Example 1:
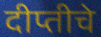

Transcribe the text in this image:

दीप्तीचे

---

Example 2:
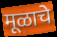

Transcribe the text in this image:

मूळाचे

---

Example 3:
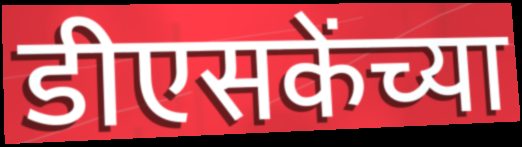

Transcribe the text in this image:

डीएसकेंच्या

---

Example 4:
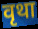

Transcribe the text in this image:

वृथा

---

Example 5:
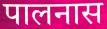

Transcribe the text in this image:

पालनास